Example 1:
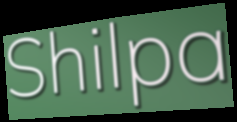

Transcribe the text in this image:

Shilpa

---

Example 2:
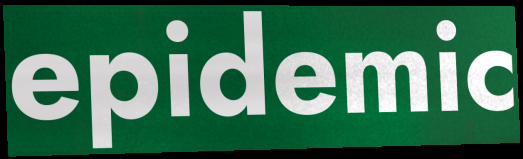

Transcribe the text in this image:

epidemic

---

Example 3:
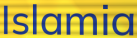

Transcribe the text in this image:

Islamia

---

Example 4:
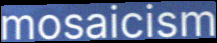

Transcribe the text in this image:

mosaicism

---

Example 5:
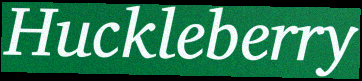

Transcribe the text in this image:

Huckleberry